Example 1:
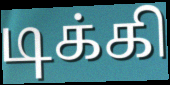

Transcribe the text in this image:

டிக்கி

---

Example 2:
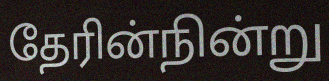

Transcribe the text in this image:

தேரின்நின்று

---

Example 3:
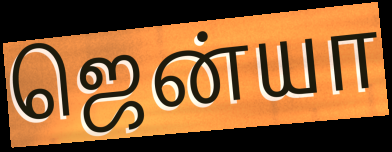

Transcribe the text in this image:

ஜென்யா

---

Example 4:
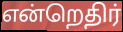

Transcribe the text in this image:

என்றெதிர்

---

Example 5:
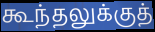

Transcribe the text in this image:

கூந்தலுக்குத்